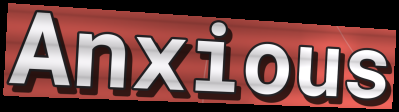
Anxious